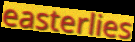
easterlies